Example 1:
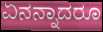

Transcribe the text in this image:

ಏನನ್ನಾದರೂ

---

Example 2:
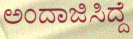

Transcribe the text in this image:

ಅಂದಾಜಿಸಿದ್ದೆ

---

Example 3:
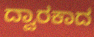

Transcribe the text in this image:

ದ್ವಾರಕಾದ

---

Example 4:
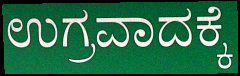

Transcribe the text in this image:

ಉಗ್ರವಾದಕ್ಕೆ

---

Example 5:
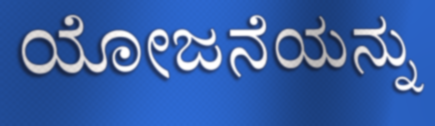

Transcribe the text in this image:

ಯೋಜನೆಯನ್ನು